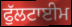
ਫੁੱਲਟਾਈਮ